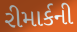
રીમાર્કની